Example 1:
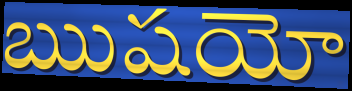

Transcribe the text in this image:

ఋషయో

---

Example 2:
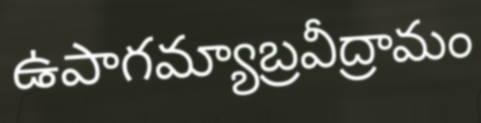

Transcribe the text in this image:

ఉపాగమ్యాబ్రవీద్రామం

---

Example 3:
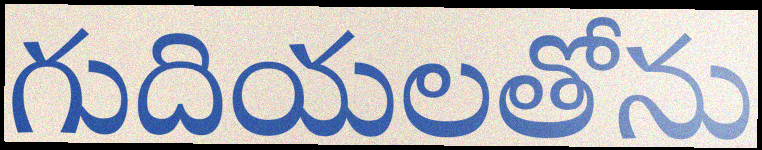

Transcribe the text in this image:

గుదియలతోను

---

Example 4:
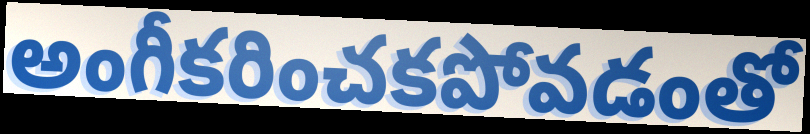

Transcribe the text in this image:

అంగీకరించకపోవడంతో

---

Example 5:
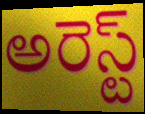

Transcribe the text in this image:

అరెస్ట్